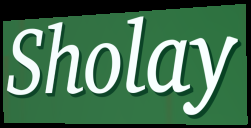
Sholay